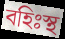
বহিঃস্থ